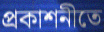
প্রকাশনীতে